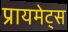
प्रायमेट्स